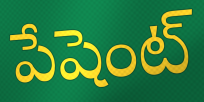
పేషెంట్